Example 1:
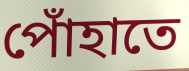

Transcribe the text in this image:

পোঁহাতে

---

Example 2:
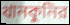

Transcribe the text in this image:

থানকুনির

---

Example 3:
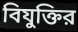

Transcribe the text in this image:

বিযুক্তির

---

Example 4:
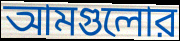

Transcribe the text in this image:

আমগুলোর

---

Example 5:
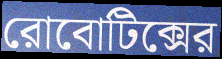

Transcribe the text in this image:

রোবোটিক্সের